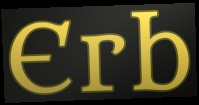
Erb